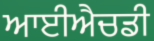
ਆਈਐਚਡੀ